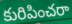
కురిపించరా